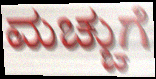
ಮಚ್ಚುಗೆ